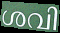
ശവി